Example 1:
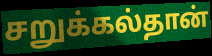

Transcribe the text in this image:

சறுக்கல்தான்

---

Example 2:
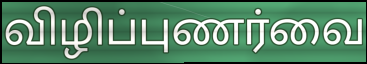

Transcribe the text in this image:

விழிப்புணர்வை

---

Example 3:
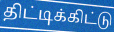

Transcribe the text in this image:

திட்டிக்கிட்டு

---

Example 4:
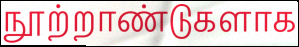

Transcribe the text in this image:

நூற்றாண்டுகளாக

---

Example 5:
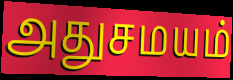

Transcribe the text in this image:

அதுசமயம்